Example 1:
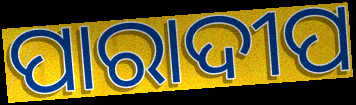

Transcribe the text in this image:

ପାରାଦୀପ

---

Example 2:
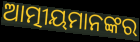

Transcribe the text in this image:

ଆତ୍ମୀୟମାନଙ୍କର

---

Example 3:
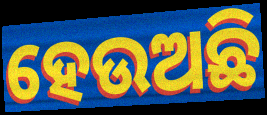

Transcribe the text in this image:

ହେଉଅଛି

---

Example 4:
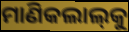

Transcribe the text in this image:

ମାଣିକଲାଲ୍‍କୁ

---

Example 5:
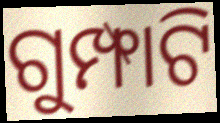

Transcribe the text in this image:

ଗୁମ୍ଫାଟି